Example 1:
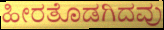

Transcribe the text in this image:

ಹೀರತೊಡಗಿದವು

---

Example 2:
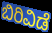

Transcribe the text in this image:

ಬಿರಿವಿಡೆ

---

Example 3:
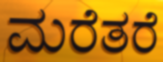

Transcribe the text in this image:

ಮರೆತರೆ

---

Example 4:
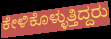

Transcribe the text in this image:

ಕೇಳಿಕೊಳ್ಳುತ್ತಿದ್ದರು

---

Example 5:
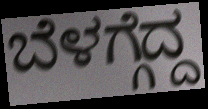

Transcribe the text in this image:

ಬೆಳಗ್ಗೆದ್ದ